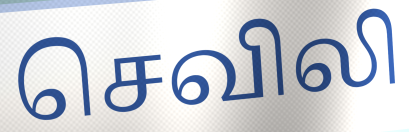
செவிலி